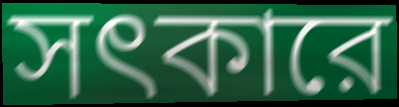
সৎকারে